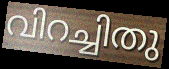
വിറച്ചിതു